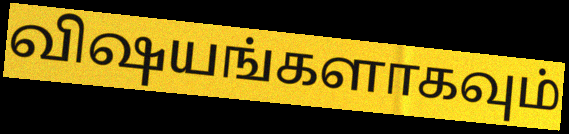
விஷயங்களாகவும்